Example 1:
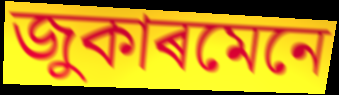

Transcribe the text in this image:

জুকাৰমেনে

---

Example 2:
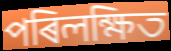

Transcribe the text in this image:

পৰিলক্ষিত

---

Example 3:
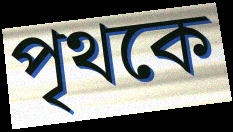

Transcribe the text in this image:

পৃথকে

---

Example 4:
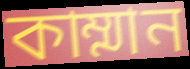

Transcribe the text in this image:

কাম্মান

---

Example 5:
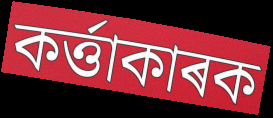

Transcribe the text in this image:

কৰ্ত্তাকাৰক